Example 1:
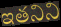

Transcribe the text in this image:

ఇతనిని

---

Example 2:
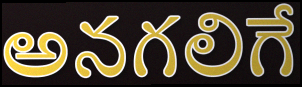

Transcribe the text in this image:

అనగలిగే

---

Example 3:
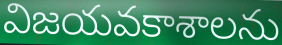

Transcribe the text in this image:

విజయవకాశాలను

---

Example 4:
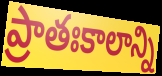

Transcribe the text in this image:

ప్రాతఃకాలాన్ని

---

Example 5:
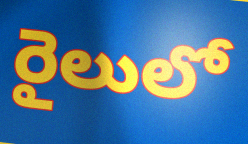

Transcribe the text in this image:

రైలులో